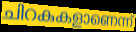
ചിറകുകളാണെന്ന്